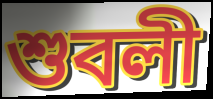
শুবলী